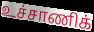
உச்சாணிக்